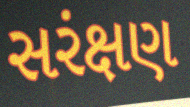
સરંક્ષણ